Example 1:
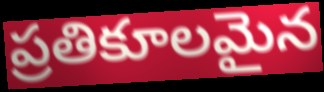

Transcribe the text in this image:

ప్రతికూలమైన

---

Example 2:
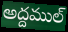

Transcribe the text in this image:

అద్దముల్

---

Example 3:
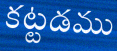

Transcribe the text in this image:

కట్టడము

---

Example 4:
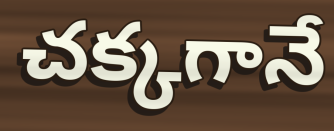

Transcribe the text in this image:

చక్కగానే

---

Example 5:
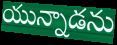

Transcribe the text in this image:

యున్నాడను